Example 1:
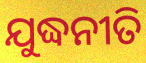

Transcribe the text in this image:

ଯୁଦ୍ଧନୀତି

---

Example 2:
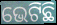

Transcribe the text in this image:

ଭେଟିଛି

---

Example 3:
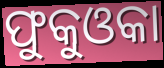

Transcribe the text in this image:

ଫୁକୁଓକା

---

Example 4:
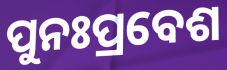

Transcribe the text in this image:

ପୁନଃପ୍ରବେଶ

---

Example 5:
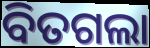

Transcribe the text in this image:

ବିତଗଲା